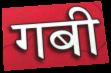
गबी